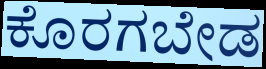
ಕೊರಗಬೇಡ